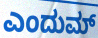
ಎಂದುಮ್